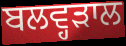
ਬਲਵ੍ਹੜਾਲ